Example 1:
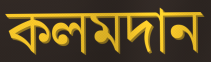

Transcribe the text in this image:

কলমদান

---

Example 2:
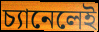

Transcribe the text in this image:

চ্যানেলেই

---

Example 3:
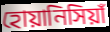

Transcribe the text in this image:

হোয়ানিসিয়াঁ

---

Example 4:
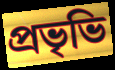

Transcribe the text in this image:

প্রভৃভি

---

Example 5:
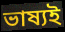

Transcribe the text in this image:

ভাষ্যই